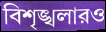
বিশৃঙ্খলারও